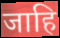
जाहि